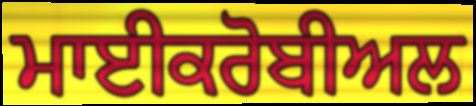
ਮਾਈਕਰੋਬੀਅਲ